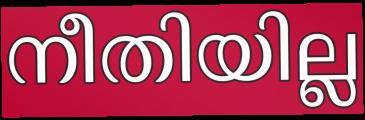
നീതിയില്ല